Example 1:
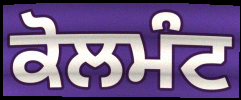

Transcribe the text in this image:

ਕੋਲਮੰਟ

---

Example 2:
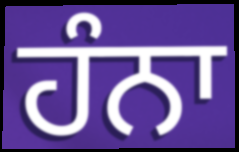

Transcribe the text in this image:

ਹੰਨਾ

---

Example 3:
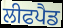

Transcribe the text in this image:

ਲੀਫਪੈਡ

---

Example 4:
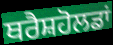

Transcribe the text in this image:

ਥਰੈਸ਼ਹੋਲਡਾਂ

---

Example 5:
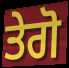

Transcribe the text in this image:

ਤੇਗੋ